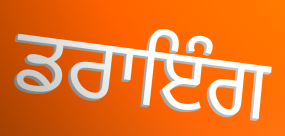
ਡਰਾਇੰਗ